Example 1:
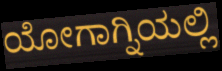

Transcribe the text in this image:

ಯೋಗಾಗ್ನಿಯಲ್ಲಿ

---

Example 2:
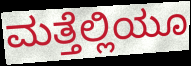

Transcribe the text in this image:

ಮತ್ತೆಲ್ಲಿಯೂ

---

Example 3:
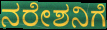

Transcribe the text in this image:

ನರೇಶನಿಗೆ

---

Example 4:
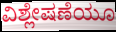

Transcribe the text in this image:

ವಿಶ್ಲೇಷಣೆಯೂ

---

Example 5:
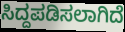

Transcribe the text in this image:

ಸಿದ್ದಪಡಿಸಲಾಗಿದೆ